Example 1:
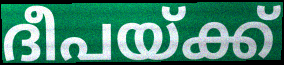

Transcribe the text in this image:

ദീപയ്ക്ക്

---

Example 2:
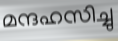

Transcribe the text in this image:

മന്ദഹസിച്ചു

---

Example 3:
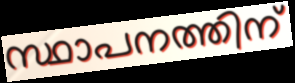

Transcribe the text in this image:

സ്ഥാപനത്തിന്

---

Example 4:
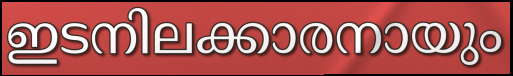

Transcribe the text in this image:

ഇടനിലക്കാരനായും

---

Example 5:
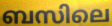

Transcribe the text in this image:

ബസിലെ